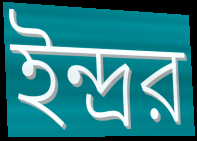
ইন্দ্রর